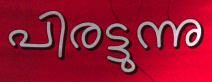
പിരട്ടുന്നു